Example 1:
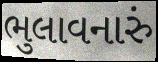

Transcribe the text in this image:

ભુલાવનારું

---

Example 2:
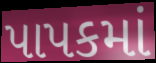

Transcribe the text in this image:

પાપકમાં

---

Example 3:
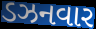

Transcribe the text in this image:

ડઝનવાર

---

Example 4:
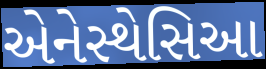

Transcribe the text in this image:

એનેસ્થેસિઆ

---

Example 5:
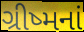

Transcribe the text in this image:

ગ્રીષ્મનાં